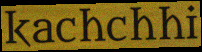
kachchhi